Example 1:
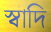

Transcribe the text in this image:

স্বাদি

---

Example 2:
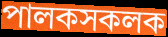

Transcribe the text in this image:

পালকসকলক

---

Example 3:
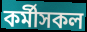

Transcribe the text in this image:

কৰ্মীসকল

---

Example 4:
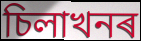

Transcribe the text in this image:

চিলাখনৰ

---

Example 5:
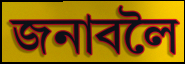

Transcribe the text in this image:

জনাবলৈ